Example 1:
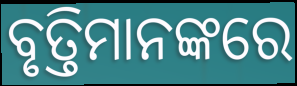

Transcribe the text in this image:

ବୃତ୍ତିମାନଙ୍କରେ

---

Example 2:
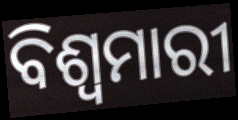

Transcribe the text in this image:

ବିଶ୍ୱମାରୀ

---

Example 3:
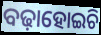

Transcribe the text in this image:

ବଢ଼ାହୋଇଚି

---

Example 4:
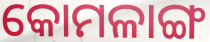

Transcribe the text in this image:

କୋମଳାଙ୍ଗ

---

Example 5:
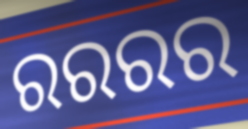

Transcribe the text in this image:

ରରରର